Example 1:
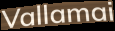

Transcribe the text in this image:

Vallamai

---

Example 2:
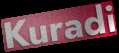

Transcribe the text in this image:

Kuradi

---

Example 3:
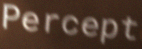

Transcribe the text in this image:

Percept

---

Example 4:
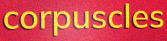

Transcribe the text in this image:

corpuscles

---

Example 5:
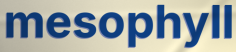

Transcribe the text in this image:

mesophyll